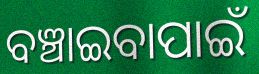
ବଞ୍ଚାଇବାପାଇଁ